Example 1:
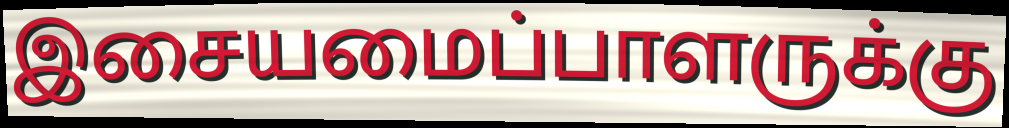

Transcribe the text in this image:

இசையமைப்பாளருக்கு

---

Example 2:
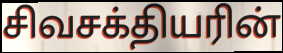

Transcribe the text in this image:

சிவசக்தியரின்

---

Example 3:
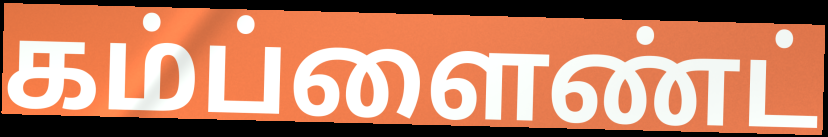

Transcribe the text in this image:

கம்ப்ளைண்ட்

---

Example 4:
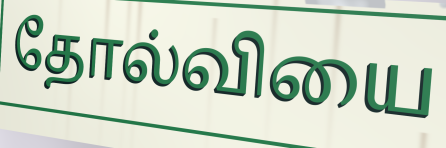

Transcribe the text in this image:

தோல்வியை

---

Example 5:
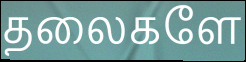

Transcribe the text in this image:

தலைகளே